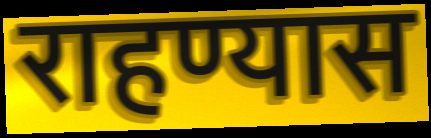
राहण्यास